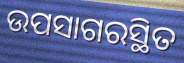
ଉପସାଗରସ୍ଥିତ